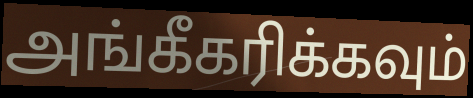
அங்கீகரிக்கவும்